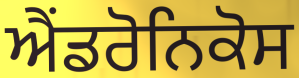
ਐਂਡਰੋਨਿਕੋਸ